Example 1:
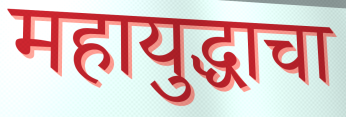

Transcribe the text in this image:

महायुद्धाचा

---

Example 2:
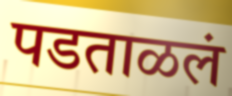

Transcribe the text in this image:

पडताळलं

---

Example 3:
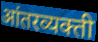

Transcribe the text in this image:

आंतरव्यक्ती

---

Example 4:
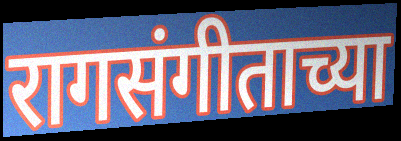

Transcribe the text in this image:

रागसंगीताच्या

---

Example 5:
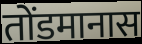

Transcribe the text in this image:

तोंडमानास